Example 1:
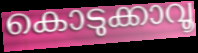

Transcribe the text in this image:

കൊടുക്കാവൂ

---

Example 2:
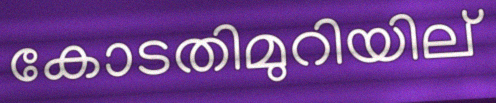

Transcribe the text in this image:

കോടതിമുറിയില്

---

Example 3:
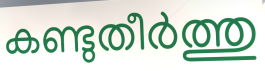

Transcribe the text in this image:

കണ്ടുതീർത്തു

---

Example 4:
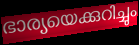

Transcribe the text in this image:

ഭാര്യയെക്കുറിച്ചും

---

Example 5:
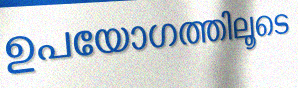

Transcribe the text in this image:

ഉപയോഗത്തിലൂടെ